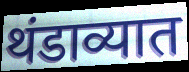
थंडाव्यात